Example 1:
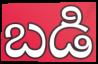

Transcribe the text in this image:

బడి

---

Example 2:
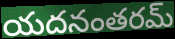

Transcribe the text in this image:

యదనంతరమ్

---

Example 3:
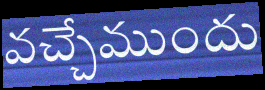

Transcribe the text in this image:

వచ్చేముందు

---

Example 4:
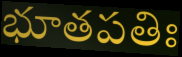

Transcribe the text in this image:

భూతపతిః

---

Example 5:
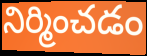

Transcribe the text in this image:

నిర్మించడం